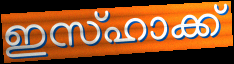
ഇസ്ഹാക്ക്